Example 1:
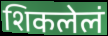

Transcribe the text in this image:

शिकलेलं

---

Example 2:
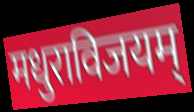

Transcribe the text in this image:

मधुराविजयम्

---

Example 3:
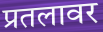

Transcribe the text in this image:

प्रतलावर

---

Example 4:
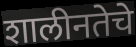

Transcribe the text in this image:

शालीनतेचे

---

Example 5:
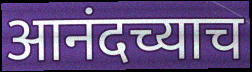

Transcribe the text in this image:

आनंदच्याच